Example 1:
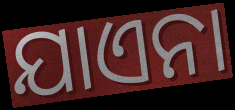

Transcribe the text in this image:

ଯାଏନା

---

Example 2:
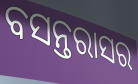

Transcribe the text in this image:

ବସନ୍ତରାସର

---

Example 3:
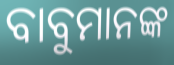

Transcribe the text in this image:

ବାବୁମାନଙ୍କ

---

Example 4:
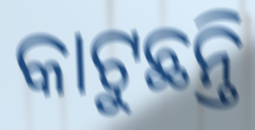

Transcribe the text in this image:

କାଟୁଛନ୍ତି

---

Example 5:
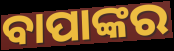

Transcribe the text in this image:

ବାପାଙ୍କର